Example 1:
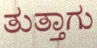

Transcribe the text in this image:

ತುತ್ತಾಗು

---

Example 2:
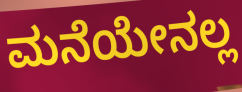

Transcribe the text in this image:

ಮನೆಯೇನಲ್ಲ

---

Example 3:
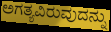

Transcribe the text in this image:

ಅಗತ್ಯವಿರುವುದನ್ನು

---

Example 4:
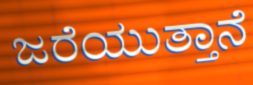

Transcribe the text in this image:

ಜರೆಯುತ್ತಾನೆ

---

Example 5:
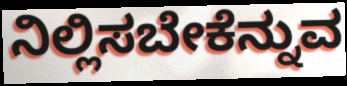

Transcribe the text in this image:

ನಿಲ್ಲಿಸಬೇಕೆನ್ನುವ